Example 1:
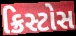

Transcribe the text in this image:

ક્રિસ્ટોસ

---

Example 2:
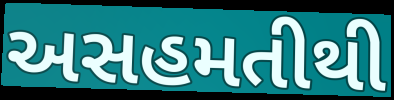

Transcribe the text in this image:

અસહમતીથી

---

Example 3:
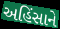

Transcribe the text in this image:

અહિંસાને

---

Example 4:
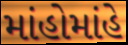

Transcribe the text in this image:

માંહોમાંહે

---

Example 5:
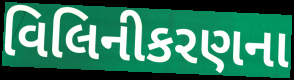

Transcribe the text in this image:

વિલિનીકરણના